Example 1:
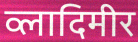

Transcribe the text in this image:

व्लादिमीर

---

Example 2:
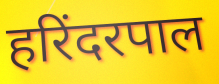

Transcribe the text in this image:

हरिंदरपाल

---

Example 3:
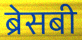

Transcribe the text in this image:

ब्रेसबी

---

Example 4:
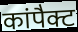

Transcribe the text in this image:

कांपैक्ट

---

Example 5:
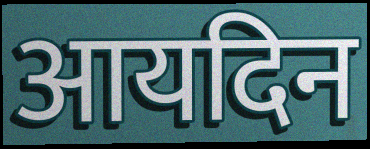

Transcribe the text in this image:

आयदिन